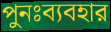
পুনঃব্যবহার